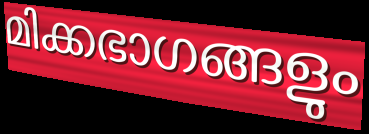
മിക്കഭാഗങ്ങളും